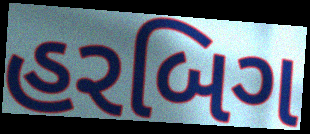
હરબિગ